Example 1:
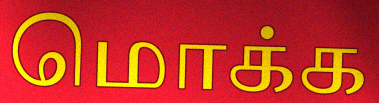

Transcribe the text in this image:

மொக்க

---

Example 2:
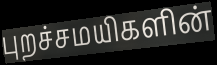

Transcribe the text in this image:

புறச்சமயிகளின்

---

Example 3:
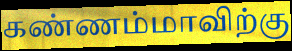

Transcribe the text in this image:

கண்ணம்மாவிற்கு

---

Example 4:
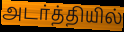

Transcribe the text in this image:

அடர்த்தியில்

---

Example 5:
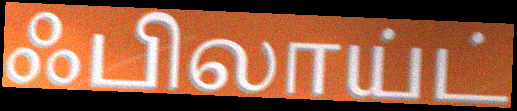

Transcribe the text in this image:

ஃபிலாய்ட்